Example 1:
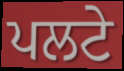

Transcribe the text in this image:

ਪਲਟੇ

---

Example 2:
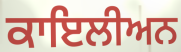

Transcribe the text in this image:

ਕਾਇਲੀਅਨ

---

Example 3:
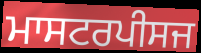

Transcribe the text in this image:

ਮਾਸਟਰਪੀਸਜ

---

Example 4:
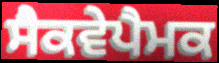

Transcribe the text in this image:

ਸੈਕਵੇਪੈਮਕ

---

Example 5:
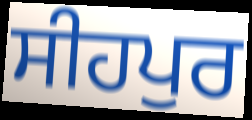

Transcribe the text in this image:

ਸੀਹਪੁਰ